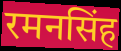
रमनसिंह